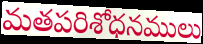
మతపరిశోధనములు